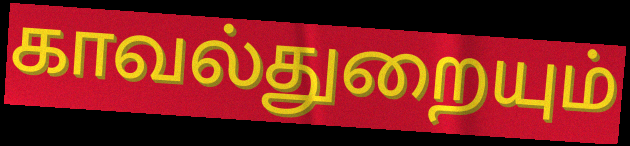
காவல்துறையும்